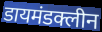
डायमंडक्लीन